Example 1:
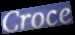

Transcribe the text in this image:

Croce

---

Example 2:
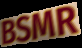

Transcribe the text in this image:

BSMR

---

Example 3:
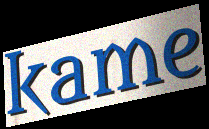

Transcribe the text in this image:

kame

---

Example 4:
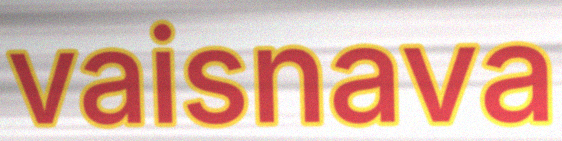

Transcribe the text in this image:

vaisnava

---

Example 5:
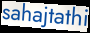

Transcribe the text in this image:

sahajtathi